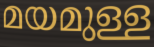
മയമുള്ള